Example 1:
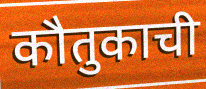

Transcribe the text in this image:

कौतुकाची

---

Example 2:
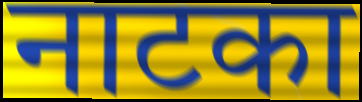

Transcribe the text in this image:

नाटका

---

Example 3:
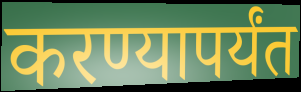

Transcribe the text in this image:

करण्यापर्यंत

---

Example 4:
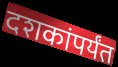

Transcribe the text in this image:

दशकांपर्यंत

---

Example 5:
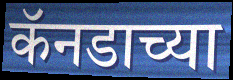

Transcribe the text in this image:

कॅनडाच्या